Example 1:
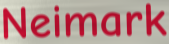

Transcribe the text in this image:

Neimark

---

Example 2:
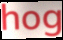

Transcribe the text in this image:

hog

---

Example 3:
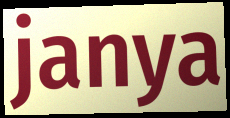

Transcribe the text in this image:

janya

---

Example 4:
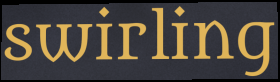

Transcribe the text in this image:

swirling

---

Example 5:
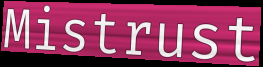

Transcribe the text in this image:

Mistrust